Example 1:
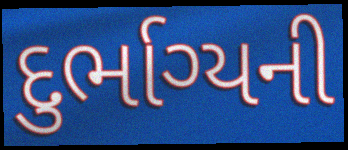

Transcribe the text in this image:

દુર્ભાગ્યની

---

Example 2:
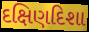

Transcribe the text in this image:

દક્ષિણદિશા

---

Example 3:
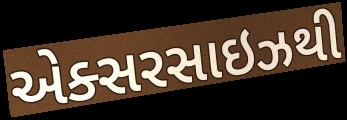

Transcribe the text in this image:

એક્સરસાઇઝથી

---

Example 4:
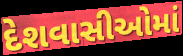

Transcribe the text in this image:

દેશવાસીઓમાં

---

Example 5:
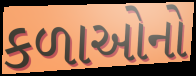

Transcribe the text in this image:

કળાઓનો